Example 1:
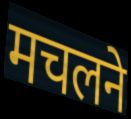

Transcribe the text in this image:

मचलने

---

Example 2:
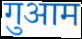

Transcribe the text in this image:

गुआम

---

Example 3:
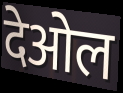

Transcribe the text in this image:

देओल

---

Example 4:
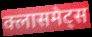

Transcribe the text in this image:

क्लासमेट्स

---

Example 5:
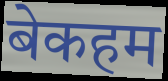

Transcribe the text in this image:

बेकहम